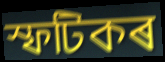
স্ফটিকৰ